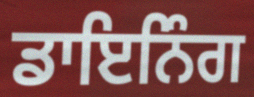
ਡਾਇਨਿੰਗ